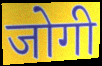
जोगी